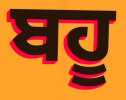
ਬਹੂ